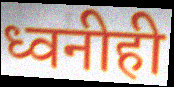
ध्वनीही